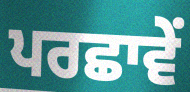
ਪਰਛਾਵੇਂ